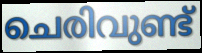
ചെരിവുണ്ട്